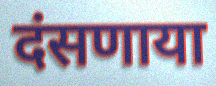
दंसणाया